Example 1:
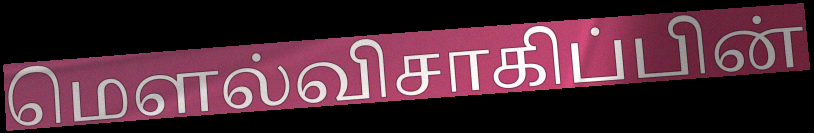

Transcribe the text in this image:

மௌல்விசாகிப்பின்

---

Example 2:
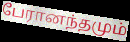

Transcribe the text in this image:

பேரானந்தமும்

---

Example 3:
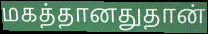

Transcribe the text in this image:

மகத்தானதுதான்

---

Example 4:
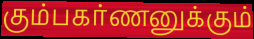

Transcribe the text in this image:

கும்பகர்ணனுக்கும்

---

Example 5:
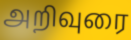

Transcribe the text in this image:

அறிவுரை